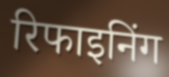
रिफाइनिंग